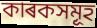
কাৰকসমূহ